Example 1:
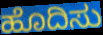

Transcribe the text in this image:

ಹೊದಿಸು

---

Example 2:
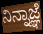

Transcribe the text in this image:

ನಿನ್ನಾಜ್ಞೆ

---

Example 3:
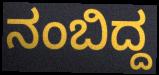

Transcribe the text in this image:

ನಂಬಿದ್ದ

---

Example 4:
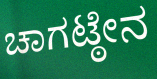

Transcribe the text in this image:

ಚಾಗಟ್ಠೇನ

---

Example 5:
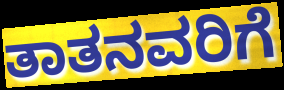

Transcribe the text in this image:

ತಾತನವರಿಗೆ